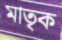
মাতৃক